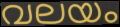
വലയം